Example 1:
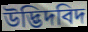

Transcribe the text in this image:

উদ্ভিদবিদ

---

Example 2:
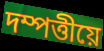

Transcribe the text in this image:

দম্পত্তীয়ে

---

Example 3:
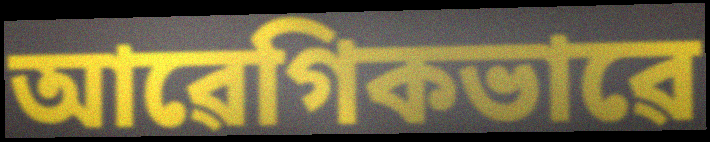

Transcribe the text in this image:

আৱেগিকভাৱে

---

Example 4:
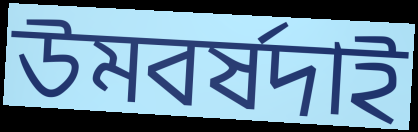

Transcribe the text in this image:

উমবৰ্ষদাই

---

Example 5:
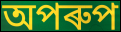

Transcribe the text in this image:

অপৰুপ